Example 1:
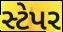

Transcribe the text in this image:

સ્ટેપર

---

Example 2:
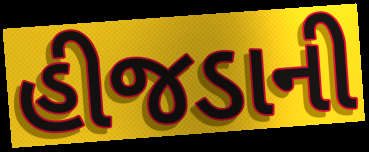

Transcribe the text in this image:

હીજડાની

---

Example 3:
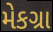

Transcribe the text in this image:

મેકગ્રા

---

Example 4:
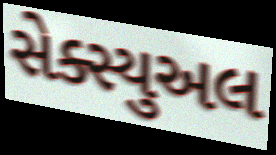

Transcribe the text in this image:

સેક્સ્યુઅલ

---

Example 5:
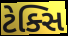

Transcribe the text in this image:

ટેક્સિ